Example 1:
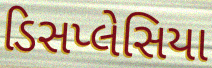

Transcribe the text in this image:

ડિસપ્લેસિયા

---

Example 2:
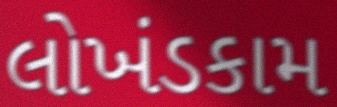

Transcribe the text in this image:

લોખંડકામ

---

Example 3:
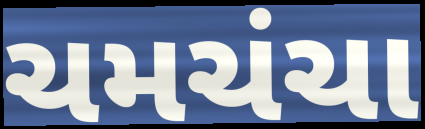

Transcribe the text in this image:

ચમચંચા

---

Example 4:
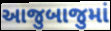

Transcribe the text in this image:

આજુબાજુમાં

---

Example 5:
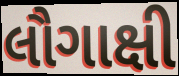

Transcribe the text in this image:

લૌગાક્ષી